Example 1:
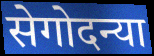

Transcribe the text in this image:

सेगोदन्या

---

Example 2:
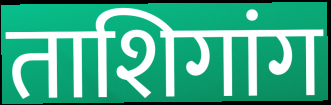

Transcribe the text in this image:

ताशिगांग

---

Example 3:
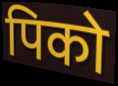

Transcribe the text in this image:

पिको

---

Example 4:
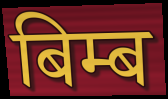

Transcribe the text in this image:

बिम्ब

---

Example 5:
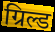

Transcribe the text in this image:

ग्रिल्ड